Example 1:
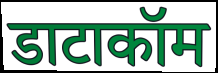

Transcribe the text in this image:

डाटाकॉम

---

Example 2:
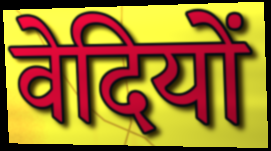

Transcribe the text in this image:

वेदियों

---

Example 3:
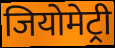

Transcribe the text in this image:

जियोमेट्री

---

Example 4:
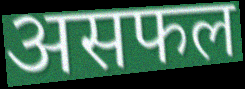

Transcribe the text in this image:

असफल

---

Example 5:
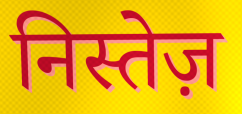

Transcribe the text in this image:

निस्तेज़